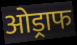
ओड्राफ